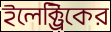
ইলেক্ট্রিকের